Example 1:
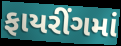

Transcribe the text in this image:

ફાયરીંગમાં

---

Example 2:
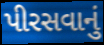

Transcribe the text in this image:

પીરસવાનું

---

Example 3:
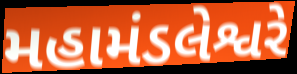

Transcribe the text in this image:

મહામંડલેશ્વરે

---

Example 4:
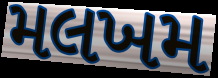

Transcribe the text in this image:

મલખમ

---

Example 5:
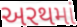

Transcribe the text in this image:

અરથમાં